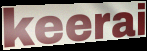
keerai